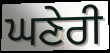
ਘਣੇਰੀ